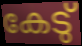
കേടു്